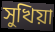
সুখিয়া